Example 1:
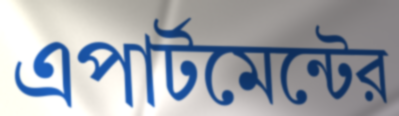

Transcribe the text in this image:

এপার্টমেন্টের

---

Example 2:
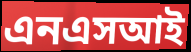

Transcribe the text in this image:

এনএসআই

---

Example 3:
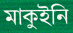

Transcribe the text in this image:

মাকুইনি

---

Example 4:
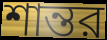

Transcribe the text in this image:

শান্তর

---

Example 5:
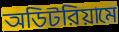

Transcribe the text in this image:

অডিটরিয়ামে